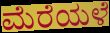
ಮೆರೆಯಳೆ